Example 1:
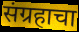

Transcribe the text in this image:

संग्रहाचा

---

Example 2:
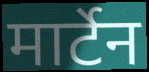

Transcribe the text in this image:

मार्टेन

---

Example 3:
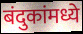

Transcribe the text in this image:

बंदुकांमध्ये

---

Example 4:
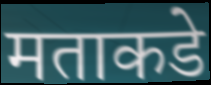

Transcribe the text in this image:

मताकडे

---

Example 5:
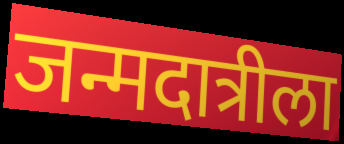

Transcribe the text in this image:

जन्मदात्रीला